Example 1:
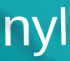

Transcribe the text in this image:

nyl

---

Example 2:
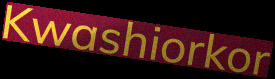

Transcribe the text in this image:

Kwashiorkor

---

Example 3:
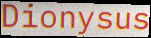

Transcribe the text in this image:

Dionysus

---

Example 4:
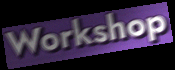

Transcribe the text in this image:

Workshop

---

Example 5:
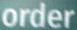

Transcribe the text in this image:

order